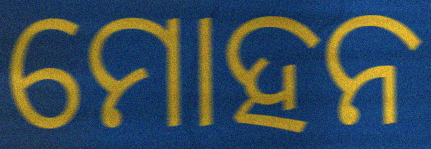
ମୋହନ